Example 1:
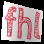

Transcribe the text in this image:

fhl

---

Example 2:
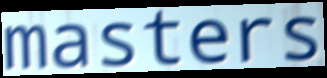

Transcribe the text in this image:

masters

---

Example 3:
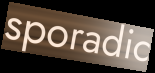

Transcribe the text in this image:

sporadic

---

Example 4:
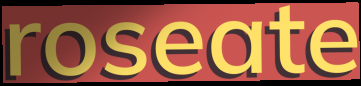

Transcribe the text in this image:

roseate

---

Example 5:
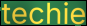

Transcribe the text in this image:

techie